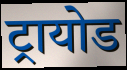
ट्रायोड